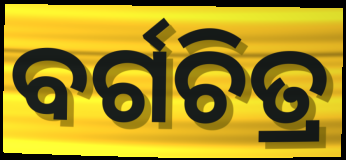
ବର୍ଗଚିତ୍ର